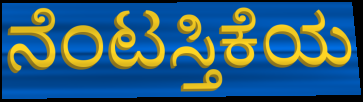
ನೆಂಟಸ್ತಿಕೆಯ